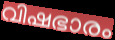
വിഷഭാരം